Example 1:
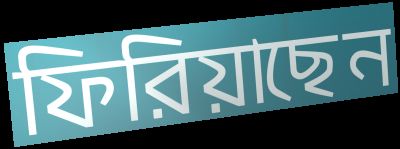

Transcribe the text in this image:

ফিরিয়াছেন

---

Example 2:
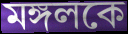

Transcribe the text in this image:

মঙ্গলকে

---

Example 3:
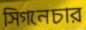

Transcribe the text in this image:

সিগনেচার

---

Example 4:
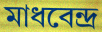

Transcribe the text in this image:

মাধবেন্দ্র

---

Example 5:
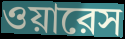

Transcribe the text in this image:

ওয়ারেস